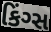
કિંગ્સ